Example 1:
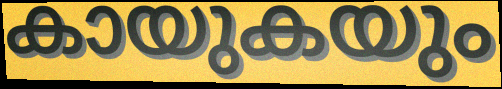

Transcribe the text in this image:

കായുകയും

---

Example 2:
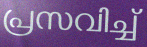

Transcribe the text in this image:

പ്രസവിച്ച്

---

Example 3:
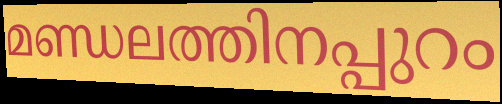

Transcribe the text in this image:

മണ്ഡലത്തിനപ്പുറം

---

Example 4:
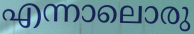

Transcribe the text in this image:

എന്നാലൊരു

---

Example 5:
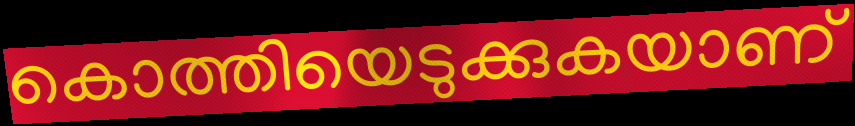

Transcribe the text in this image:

കൊത്തിയെടുക്കുകയാണ്